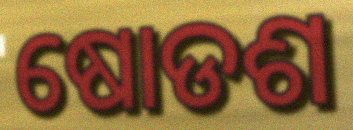
ଷୋଡଶ